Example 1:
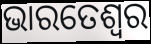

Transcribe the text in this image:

ଭାରତେଶ୍ୱର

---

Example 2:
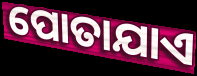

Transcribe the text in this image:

ପୋତାଯାଏ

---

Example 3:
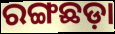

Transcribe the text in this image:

ରଙ୍ଗଛଡ଼ା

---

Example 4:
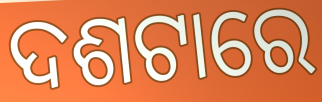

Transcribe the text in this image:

ଦଶଟାରେ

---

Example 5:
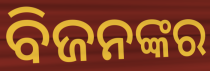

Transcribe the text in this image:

ବିଜନଙ୍କର